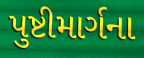
પુષ્ટીમાર્ગના